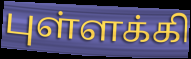
புள்ளக்கி